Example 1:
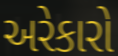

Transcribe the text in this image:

અરેકારો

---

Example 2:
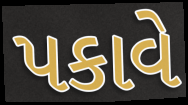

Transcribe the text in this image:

પકાવે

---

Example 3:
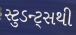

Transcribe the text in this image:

સ્ટુડન્ટ્સથી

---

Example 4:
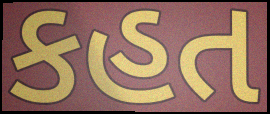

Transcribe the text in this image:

કહત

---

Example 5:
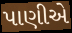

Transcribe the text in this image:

પાણીએ